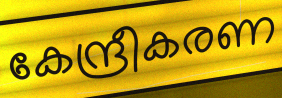
കേന്ദ്രീകരണ